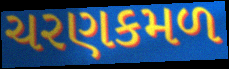
ચરણકમળ